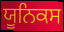
ਯੂਨਿਕਸ